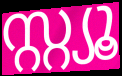
സ്റ്റ്യൂ